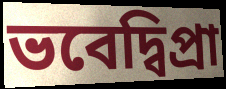
ভবেদ্বিপ্রা